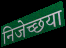
निजेच्छया